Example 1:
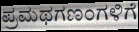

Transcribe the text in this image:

ಪ್ರಮಥಗಣಂಗಳಿಗೆ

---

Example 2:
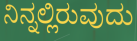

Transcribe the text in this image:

ನಿನ್ನಲ್ಲಿರುವುದು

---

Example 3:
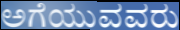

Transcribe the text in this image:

ಅಗೆಯುವವರು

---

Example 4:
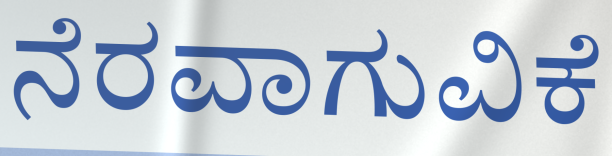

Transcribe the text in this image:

ನೆರವಾಗುವಿಕೆ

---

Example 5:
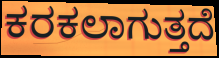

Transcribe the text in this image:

ಕರಕಲಾಗುತ್ತದೆ